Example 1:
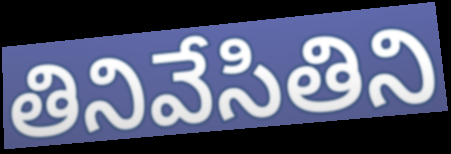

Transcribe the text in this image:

తినివేసితిని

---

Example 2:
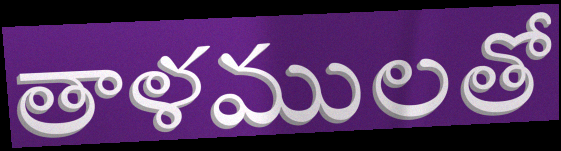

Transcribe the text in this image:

తాళములతో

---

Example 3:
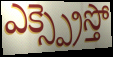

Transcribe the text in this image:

ఎక్స్ప్రెస్తో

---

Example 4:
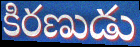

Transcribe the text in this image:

కిరణుడు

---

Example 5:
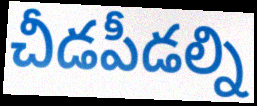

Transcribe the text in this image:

చీడపీడల్ని